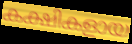
കക്ഷികളായ